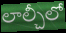
లాల్చీలో